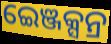
ଇେଞ୍ଜକ୍ସନ୍ର